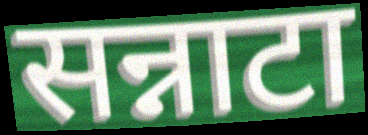
सन्नाटा